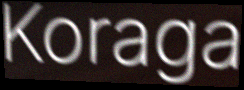
Koraga